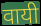
वायी